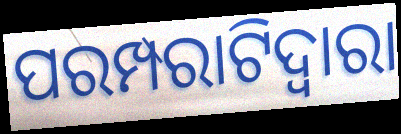
ପରମ୍ପରାଟିଦ୍ୱାରା